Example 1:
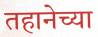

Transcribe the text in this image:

तहानेच्या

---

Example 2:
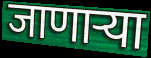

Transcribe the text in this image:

जाणार्‍या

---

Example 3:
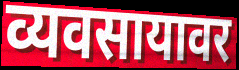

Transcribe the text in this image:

व्यवसायावर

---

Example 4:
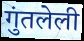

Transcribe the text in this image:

गुंतलेली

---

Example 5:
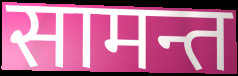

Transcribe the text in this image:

सामन्त